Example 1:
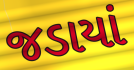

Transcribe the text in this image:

જડાયાં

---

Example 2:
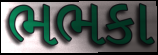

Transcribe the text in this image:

ભભકા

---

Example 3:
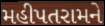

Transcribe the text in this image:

મહીપતરામને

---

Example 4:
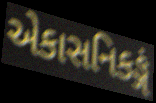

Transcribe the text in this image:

એકાસનિકઙ્ગં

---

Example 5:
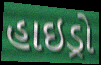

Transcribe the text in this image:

હાઇડ્રો